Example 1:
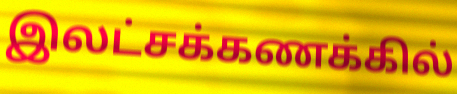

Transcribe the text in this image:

இலட்சக்கணக்கில்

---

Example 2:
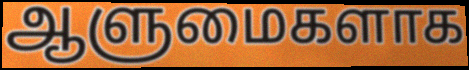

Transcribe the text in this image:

ஆளுமைகளாக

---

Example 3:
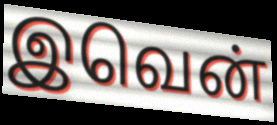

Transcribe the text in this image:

இவென்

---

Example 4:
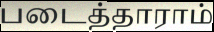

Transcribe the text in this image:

படைத்தாராம்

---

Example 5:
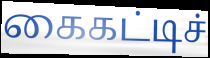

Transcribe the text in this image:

கைகட்டிச்